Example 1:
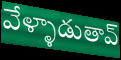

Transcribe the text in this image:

వేళ్ళాడుతావ్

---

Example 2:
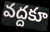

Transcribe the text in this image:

వద్దకూ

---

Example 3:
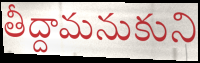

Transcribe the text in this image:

తీద్దామనుకుని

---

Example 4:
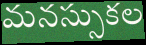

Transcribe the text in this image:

మనస్సుకల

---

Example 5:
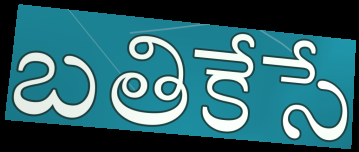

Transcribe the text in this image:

బతికేసే